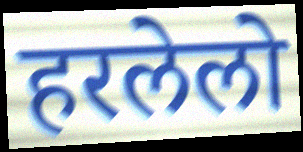
हरलेलो